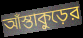
আঁস্তাকুড়ের